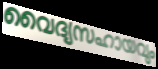
വൈദ്യസഹായവും